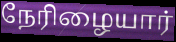
நேரிழையார்